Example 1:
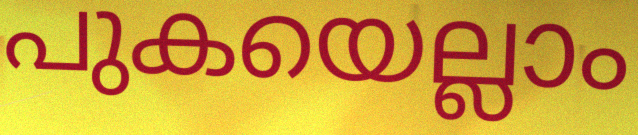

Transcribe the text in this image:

പുകയെല്ലാം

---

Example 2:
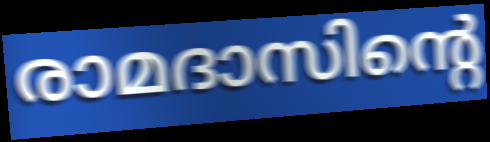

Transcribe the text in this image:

രാമദാസിന്റെ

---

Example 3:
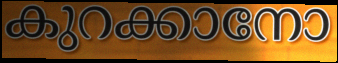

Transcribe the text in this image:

കുറക്കാനോ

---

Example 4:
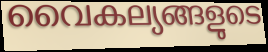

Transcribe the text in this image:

വൈകല്യങ്ങളുടെ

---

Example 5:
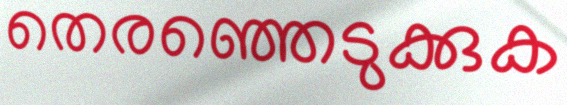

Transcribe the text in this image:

തെരഞ്ഞെടുക്കുക